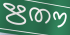
ഋതൗ